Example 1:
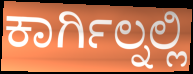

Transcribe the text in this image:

ಕಾರ್ಗಿಲ್ನಲ್ಲಿ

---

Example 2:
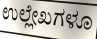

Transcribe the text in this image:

ಉಲ್ಲೇಖಗಳೂ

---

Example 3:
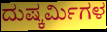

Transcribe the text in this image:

ದುಷ್ಕರ್ಮಿಗಳ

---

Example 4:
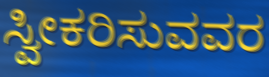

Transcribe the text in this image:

ಸ್ವೀಕರಿಸುವವರ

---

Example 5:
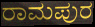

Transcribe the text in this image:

ರಾಮಪುರ